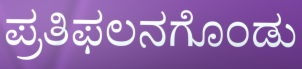
ಪ್ರತಿಫಲನಗೊಂಡು